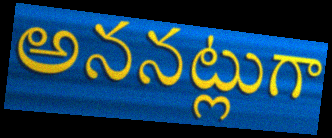
అననట్లుగా